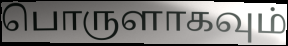
பொருளாகவும்